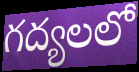
గద్యలలో